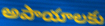
అపాయాలకు